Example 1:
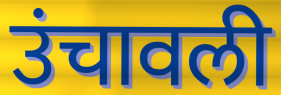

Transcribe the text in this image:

उंचावली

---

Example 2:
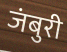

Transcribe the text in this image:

जंबुरी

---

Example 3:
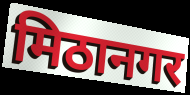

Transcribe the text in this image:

मिठानगर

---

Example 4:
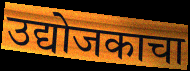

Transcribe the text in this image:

उद्योजकाचा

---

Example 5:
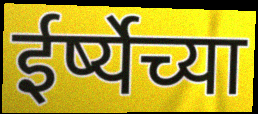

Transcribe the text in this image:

ईर्ष्येच्या